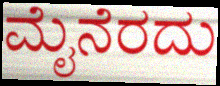
ಮೈನೆರದು